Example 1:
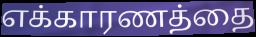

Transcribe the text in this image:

எக்காரணத்தை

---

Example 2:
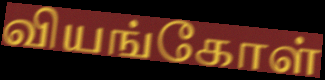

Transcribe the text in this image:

வியங்கோள்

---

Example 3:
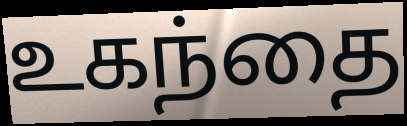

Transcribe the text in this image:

உகந்தை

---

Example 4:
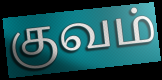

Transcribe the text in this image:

குவம்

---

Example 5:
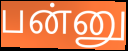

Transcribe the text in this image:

பன்னு